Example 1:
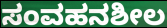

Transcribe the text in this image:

ಸಂವಹನಶೀಲ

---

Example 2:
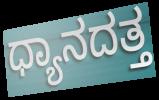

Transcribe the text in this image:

ಧ್ಯಾನದತ್ತ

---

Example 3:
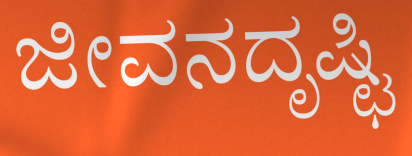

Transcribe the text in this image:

ಜೀವನದೃಷ್ಟಿ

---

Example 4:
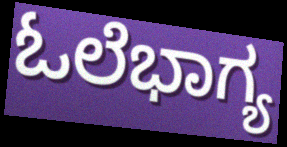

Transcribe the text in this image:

ಓಲೆಭಾಗ್ಯ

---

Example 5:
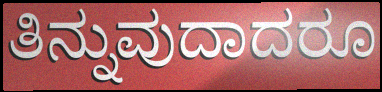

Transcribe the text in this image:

ತಿನ್ನುವುದಾದರೂ